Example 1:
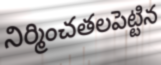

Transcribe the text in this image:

నిర్మించతలపెట్టిన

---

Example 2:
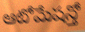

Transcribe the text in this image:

ఆటోమేషన్తో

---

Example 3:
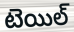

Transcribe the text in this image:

టెయిల్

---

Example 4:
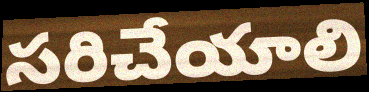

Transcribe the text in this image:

సరిచేయాలి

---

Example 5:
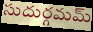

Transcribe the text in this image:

సుదుర్గమమ్